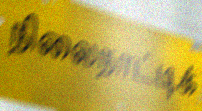
நிலைநாட்டிக்